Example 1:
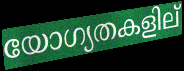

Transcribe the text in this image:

യോഗ്യതകളില്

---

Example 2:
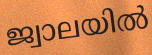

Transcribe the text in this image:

ജ്വാലയിൽ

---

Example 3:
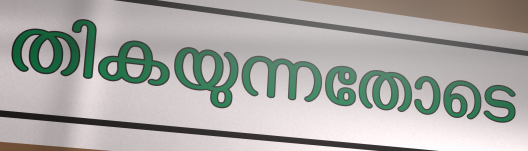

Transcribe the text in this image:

തികയുന്നതോടെ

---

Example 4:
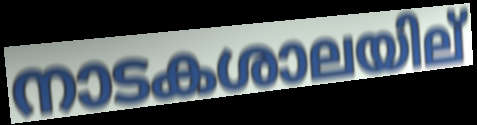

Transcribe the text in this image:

നാടകശാലയില്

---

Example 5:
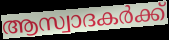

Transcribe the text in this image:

ആസ്വാദകർക്ക്